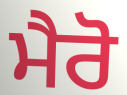
ਮੈਰੋ